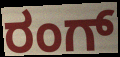
ರಂಗ್